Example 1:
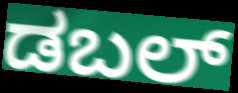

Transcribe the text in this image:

ಡಬಲ್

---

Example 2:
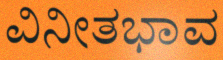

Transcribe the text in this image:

ವಿನೀತಭಾವ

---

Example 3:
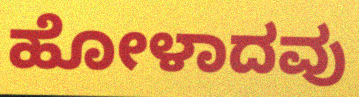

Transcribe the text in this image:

ಹೋಳಾದವು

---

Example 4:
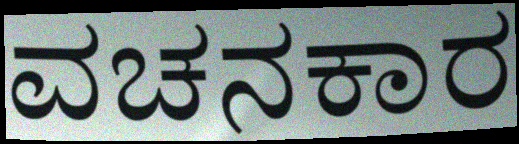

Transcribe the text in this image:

ವಚನಕಾರ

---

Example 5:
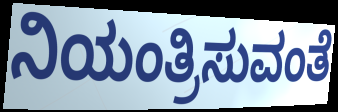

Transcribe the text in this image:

ನಿಯಂತ್ರಿಸುವಂತೆ